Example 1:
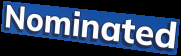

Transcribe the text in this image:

Nominated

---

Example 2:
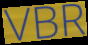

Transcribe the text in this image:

VBR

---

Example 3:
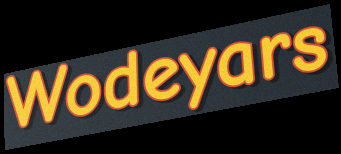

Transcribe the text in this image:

Wodeyars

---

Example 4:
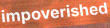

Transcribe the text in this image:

impoverished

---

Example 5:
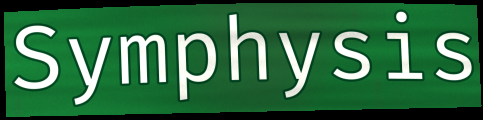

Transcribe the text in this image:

Symphysis